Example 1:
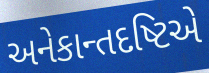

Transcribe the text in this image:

અનેકાન્તદષ્ટિએ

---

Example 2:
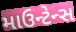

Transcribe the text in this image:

માઉન્ટેન્સ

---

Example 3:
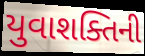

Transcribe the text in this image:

યુવાશક્તિની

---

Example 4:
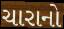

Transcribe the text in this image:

ચારાનો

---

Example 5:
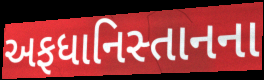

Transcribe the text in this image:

અફધાનિસ્તાનના